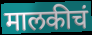
मालकीचं